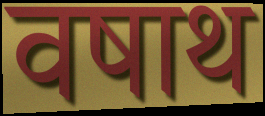
वषाथ